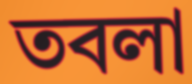
তবলা